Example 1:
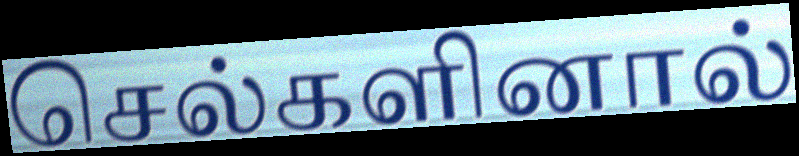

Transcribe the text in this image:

செல்களினால்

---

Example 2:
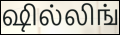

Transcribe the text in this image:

ஷில்லிங்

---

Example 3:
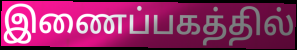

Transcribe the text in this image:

இணைப்பகத்தில்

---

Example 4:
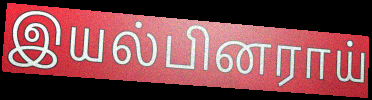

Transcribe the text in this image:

இயல்பினராய்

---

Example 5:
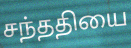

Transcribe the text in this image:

சந்ததியை